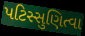
પટિસ્સુણિત્વા